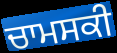
ਚਾਮਸਕੀ